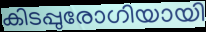
കിടപ്പുരോഗിയായി